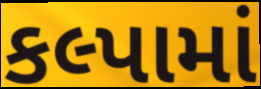
કલ્પામાં